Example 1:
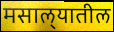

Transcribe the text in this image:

मसाल्यातील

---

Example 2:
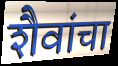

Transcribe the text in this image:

शैवांचा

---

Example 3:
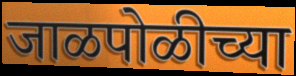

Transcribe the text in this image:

जाळपोळीच्या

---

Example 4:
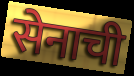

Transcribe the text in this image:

सेनाची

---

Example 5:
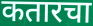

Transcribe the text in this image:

कतारचा